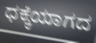
ಧಕ್ಕೆಯಾಗದ